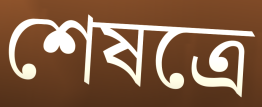
শেষত্রে